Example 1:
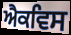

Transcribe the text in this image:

ਐਕਵਿਸ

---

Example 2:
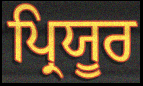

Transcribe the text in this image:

ਪ੍ਰਿਯੂਰ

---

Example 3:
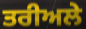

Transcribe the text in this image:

ਤਰੀਅਲੇ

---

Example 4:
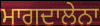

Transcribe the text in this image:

ਮਾਗਦਾਲੇਨਾ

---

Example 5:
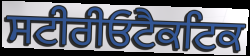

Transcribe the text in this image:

ਸਟੀਰੀਓਟੈਕਟਿਕ